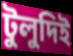
টুলুদিই